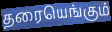
தரையெங்கும்